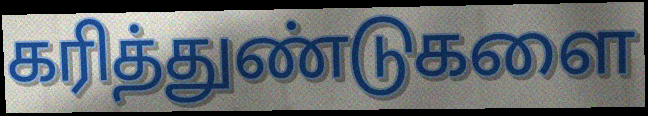
கரித்துண்டுகளை